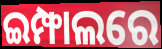
ଇମ୍ଫାଲରେ